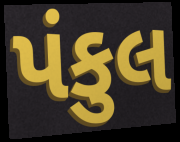
પંકુલ